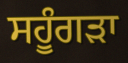
ਸਹੂੰਗੜਾ